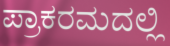
ಪ್ರಾಕರಮದಲ್ಲಿ